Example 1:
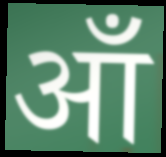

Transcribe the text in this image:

आँ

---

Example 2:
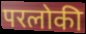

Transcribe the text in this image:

परलोकी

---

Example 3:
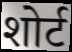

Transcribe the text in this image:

शोर्ट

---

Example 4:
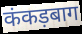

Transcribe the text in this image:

कंकड़बाग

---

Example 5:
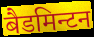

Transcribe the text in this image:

बैडमिन्टन